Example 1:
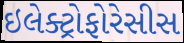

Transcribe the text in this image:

ઇલેક્ટ્રોફોરેસીસ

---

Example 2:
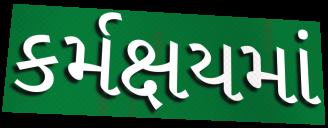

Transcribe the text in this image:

કર્મક્ષયમાં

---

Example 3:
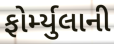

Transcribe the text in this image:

ફોર્મ્યુલાની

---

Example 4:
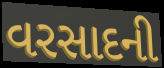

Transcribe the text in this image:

વરસાદની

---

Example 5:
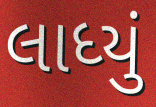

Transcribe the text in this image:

લાધ્યું